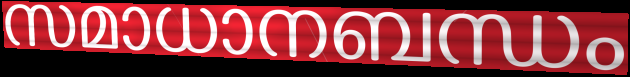
സമാധാനബന്ധം